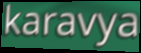
karavya